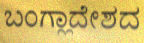
ಬಂಗ್ಲಾದೇಶದ